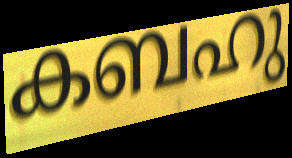
കബഹു